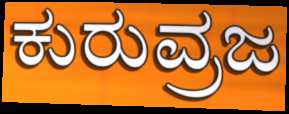
ಕುರುವ್ರಜ